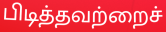
பிடித்தவற்றைச்